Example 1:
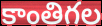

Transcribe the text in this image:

కాంతిగల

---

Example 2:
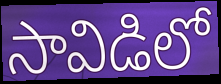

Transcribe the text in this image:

సావిడిలో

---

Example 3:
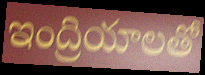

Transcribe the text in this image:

ఇంద్రియాలతో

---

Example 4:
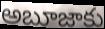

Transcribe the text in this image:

అబూజాకు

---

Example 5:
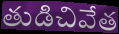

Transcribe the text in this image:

తుడిచివేత